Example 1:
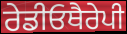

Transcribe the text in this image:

ਰੇਡੀਓਥੈਰੇਪੀ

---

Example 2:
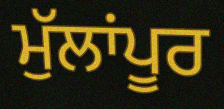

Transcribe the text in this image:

ਮੁੱਲਾਂਪੂਰ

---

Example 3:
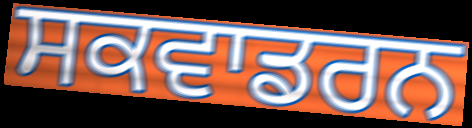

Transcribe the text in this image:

ਸਕਵਾਡਰਨ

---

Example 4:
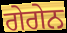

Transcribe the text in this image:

ਗੇਗੇਨ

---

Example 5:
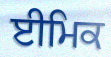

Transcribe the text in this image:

ਈਮਿਕ